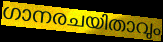
ഗാനരചയിതാവും